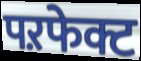
पऱफेक्ट